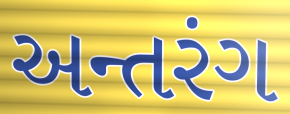
અન્તરંગ